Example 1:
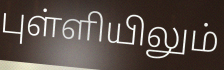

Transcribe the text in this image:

புள்ளியிலும்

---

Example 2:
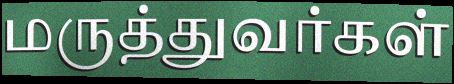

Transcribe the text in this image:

மருத்துவர்கள்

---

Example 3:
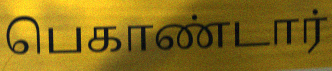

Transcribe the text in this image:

பெகாண்டார்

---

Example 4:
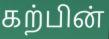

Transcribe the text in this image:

கற்பின்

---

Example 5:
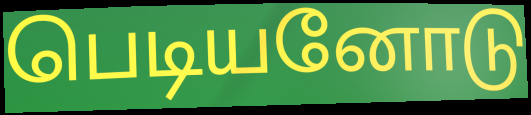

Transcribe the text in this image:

பெடியனோடு